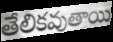
తేలికవుతాయి